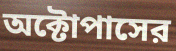
অক্টোপাসের